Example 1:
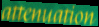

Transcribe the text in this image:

attenuation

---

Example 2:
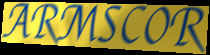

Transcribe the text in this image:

ARMSCOR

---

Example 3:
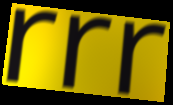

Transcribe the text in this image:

rrr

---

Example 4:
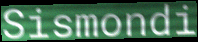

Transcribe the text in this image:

Sismondi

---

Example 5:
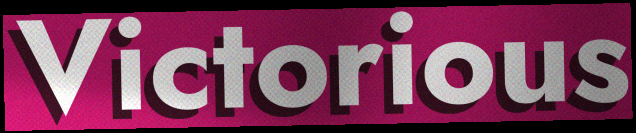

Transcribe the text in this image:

Victorious